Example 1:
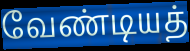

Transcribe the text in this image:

வேண்டியத்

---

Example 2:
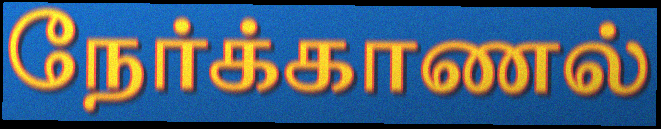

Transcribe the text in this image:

நேர்க்காணல்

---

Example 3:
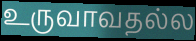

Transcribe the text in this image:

உருவாவதல்ல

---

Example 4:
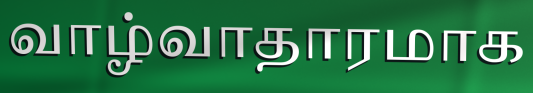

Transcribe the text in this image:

வாழ்வாதாரமாக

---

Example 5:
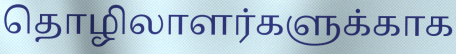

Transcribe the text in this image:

தொழிலாளர்களுக்காக